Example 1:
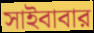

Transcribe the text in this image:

সাইবাবার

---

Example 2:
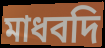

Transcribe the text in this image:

মাধবদি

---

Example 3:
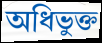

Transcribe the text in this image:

অধিভুক্ত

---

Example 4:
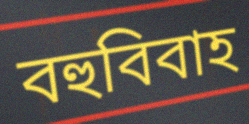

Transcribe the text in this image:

বহুবিবাহ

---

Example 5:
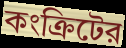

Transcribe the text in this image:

কংক্রিটের